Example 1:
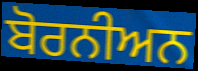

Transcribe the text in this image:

ਬੋਰਨੀਅਨ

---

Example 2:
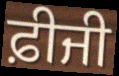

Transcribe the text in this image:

ਫ਼ੀਜੀ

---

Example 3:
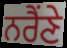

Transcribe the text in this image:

ਨਰੈਂਣੇ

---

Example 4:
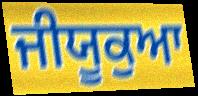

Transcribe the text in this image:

ਜੀਯੂਕੁਆ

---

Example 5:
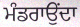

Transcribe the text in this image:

ਮੰਡਰਾਉਂਦਾ